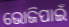
ଭୋଜିପାଇଁ